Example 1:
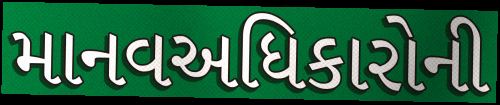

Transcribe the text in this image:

માનવઅધિકારોની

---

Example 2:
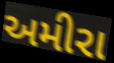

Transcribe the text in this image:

અમીરા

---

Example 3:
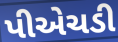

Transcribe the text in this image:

પીએચડી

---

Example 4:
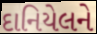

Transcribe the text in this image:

દાનિયેલને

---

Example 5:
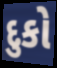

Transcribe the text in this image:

દુકો